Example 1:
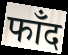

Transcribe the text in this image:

फाँद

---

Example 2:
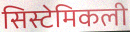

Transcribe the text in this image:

सिस्टेमिकली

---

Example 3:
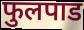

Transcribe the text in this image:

फुलपाड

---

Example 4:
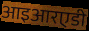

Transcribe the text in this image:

आइआरएडी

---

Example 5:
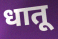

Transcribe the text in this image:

धातू